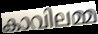
കാവിലമ്മ